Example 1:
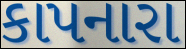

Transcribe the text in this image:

કાપનારા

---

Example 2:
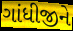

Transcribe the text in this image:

ગાંધીજીને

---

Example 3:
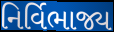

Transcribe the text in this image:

નિર્વિભાજ્ય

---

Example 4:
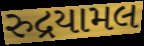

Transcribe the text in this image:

રુદ્રયામલ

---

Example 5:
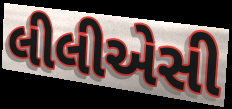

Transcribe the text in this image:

લીલીએસી